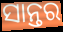
ସାନ୍ତର